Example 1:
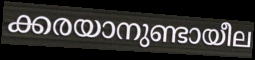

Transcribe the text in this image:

ക്കരയാനുണ്ടായീല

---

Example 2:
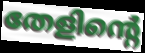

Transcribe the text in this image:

തേളിന്റെ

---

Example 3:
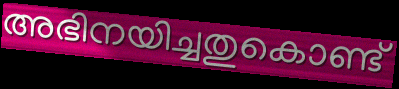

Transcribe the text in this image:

അഭിനയിച്ചതുകൊണ്ട്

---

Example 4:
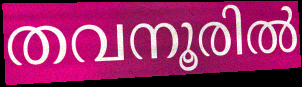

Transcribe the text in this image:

തവനൂരിൽ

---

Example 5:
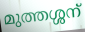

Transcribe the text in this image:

മുത്തശ്ശന്